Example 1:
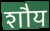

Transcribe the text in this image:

शौय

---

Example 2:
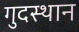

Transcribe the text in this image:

गुदस्थान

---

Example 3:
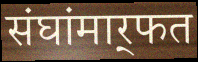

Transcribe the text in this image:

संघांमार्फत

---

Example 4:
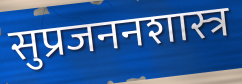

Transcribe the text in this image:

सुप्रजननशास्त्र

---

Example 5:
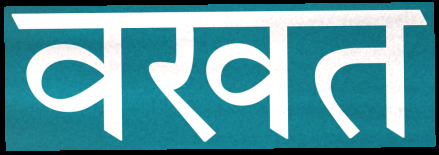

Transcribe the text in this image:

वखत